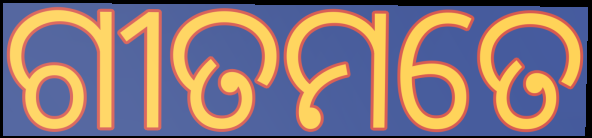
ଗୀତମତେ